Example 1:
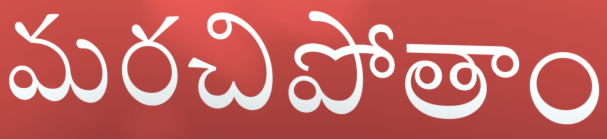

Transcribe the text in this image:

మరచిపోతాం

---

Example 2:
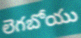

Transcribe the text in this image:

లెగబోయు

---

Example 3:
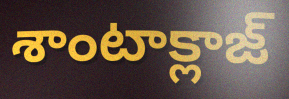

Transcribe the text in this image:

శాంటాక్లాజ్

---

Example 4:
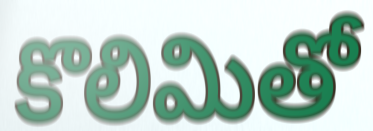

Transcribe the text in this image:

కొలిమితో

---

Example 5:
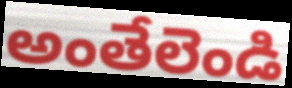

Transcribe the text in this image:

అంతేలెండి